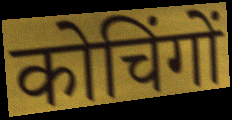
कोचिंगों